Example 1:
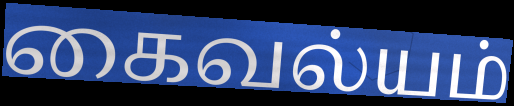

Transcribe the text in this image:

கைவல்யம்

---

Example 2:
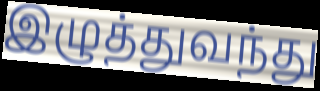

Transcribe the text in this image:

இழுத்துவந்து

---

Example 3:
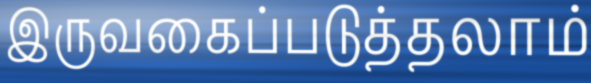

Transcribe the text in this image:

இருவகைப்படுத்தலாம்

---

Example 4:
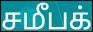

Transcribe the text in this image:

சமீபக்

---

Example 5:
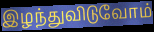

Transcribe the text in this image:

இழந்துவிடுவோம்